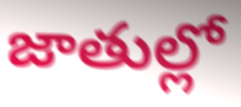
జాతుల్లో